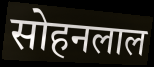
सोहनलाल